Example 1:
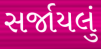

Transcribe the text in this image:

સર્જાયલું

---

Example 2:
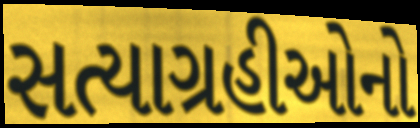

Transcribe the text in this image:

સત્યાગ્રહીઓનો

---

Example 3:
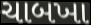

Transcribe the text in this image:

ચાબખા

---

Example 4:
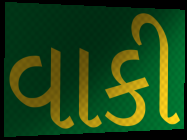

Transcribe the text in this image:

વાકી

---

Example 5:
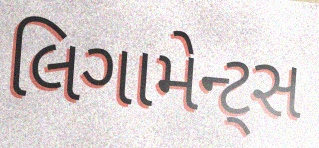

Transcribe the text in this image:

લિગામેન્ટ્સ